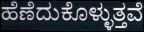
ಹೆಣೆದುಕೊಳ್ಳುತ್ತವೆ